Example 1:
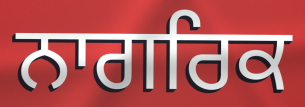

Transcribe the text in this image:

ਨਾਗਰਿਕ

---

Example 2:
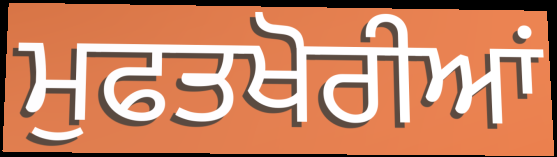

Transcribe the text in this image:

ਮੁਫਤਖੋਰੀਆਂ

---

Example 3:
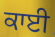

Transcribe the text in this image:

ਕਾਈ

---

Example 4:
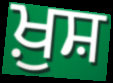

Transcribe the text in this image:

ਖ਼ੁਸ਼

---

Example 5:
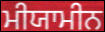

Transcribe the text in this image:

ਮੀਯਾਮੀਨ